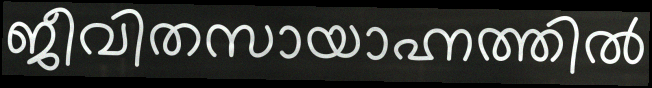
ജീവിതസായാഹ്നത്തിൽ